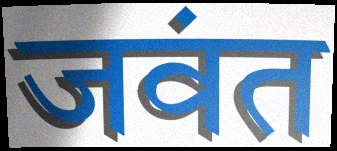
जवंत